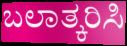
ಬಲಾತ್ಕರಿಸಿ